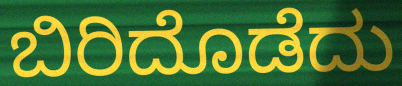
ಬಿರಿದೊಡೆದು